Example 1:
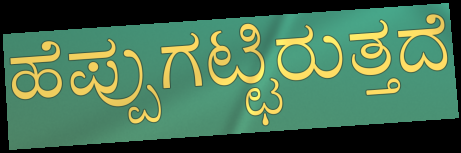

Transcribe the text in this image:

ಹೆಪ್ಪುಗಟ್ಟಿರುತ್ತದೆ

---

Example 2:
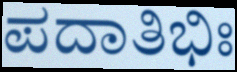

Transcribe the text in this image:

ಪದಾತಿಭಿಃ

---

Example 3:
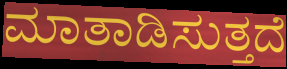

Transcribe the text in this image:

ಮಾತಾಡಿಸುತ್ತದೆ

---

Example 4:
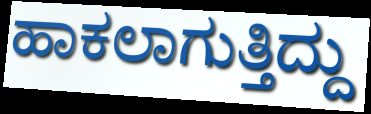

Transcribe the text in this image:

ಹಾಕಲಾಗುತ್ತಿದ್ದು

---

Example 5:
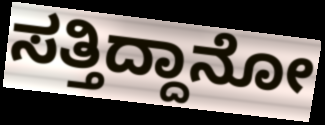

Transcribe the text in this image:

ಸತ್ತಿದ್ದಾನೋ